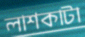
লাশকাটা